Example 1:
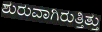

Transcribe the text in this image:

ಶುರುವಾಗಿರುತ್ತಿತ್ತು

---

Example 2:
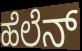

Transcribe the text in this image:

ಹೆಲೆನ್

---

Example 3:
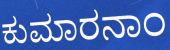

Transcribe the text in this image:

ಕುಮಾರನಾಂ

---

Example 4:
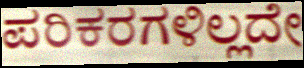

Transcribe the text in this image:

ಪರಿಕರಗಳಿಲ್ಲದೇ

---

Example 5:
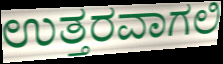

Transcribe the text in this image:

ಉತ್ತರವಾಗಲಿ